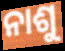
ନାଶୁ